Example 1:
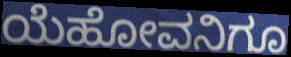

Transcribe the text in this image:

ಯೆಹೋವನಿಗೂ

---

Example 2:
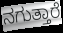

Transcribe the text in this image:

ನಗುತ್ತಾರೆ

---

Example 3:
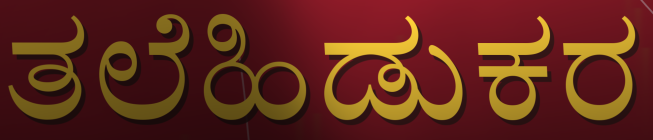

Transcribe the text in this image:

ತಲೆಹಿಡುಕರ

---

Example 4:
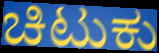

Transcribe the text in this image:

ಚಿಟುಕು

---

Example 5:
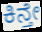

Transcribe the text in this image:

ಕಿನ್ತೇ